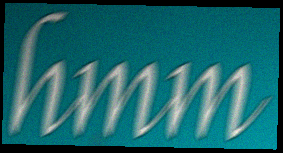
hmm